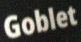
Goblet